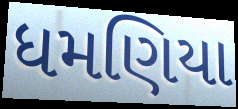
ધમણિયા